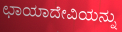
ಛಾಯಾದೇವಿಯನ್ನು